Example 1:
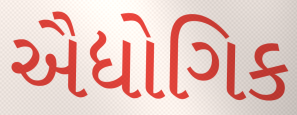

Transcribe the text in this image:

ઐદ્યોગિક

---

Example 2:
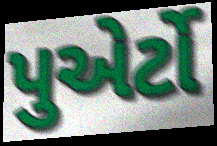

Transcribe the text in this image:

પુએર્ટો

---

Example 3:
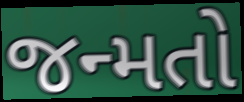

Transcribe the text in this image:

જન્મતો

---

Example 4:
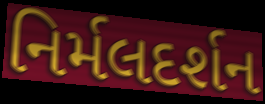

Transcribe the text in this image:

નિર્મલદર્શન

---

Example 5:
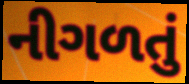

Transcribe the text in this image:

નીગળતું